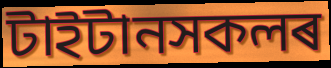
টাইটানসকলৰ